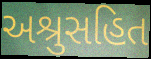
અશ્રુસહિત